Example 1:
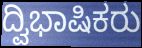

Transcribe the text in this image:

ದ್ವಿಭಾಷಿಕರು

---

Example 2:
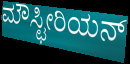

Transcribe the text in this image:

ಮೌಸ್ಟೀರಿಯನ್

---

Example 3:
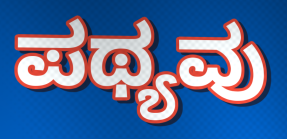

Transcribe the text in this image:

ಪಥ್ಯವು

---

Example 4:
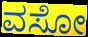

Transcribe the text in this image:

ವಸೋ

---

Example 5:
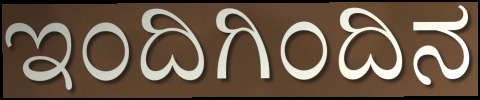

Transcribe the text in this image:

ಇಂದಿಗಿಂದಿನ